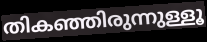
തികഞ്ഞിരുന്നുള്ളൂ